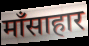
माँसाहार